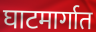
घाटमार्गात